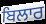
ਬਿਲਾਰ